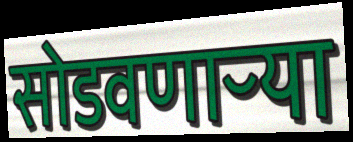
सोडवणाऱ्या